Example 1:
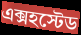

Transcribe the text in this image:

এক্সহস্টেড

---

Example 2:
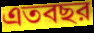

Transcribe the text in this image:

এতবছর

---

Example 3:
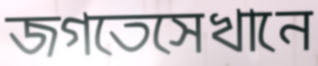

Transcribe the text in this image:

জগতেসেখানে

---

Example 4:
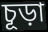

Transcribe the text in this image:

চূড়া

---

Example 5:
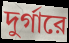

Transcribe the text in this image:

দুর্গারে